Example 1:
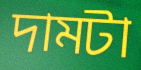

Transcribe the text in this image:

দামটা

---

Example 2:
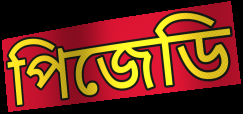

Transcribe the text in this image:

পিজেডি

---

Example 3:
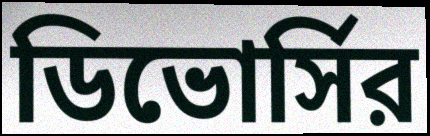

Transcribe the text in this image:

ডিভোর্সির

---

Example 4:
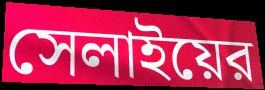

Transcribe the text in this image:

সেলাইয়ের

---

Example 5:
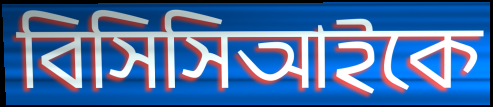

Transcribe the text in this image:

বিসিসিআইকে